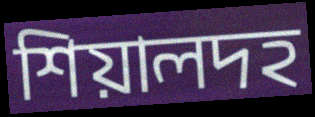
শিয়ালদহ